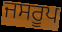
ਜਸਰੂਪ